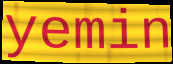
yemin